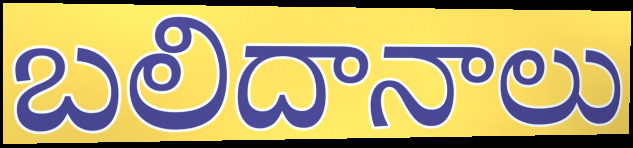
బలిదానాలు